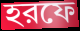
হরফে